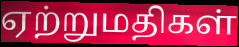
ஏற்றுமதிகள்